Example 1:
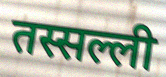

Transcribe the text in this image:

तस्सल्ली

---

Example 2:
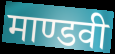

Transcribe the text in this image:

माण्डवी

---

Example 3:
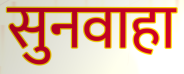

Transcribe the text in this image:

सुनवाहा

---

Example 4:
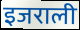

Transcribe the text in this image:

इजराली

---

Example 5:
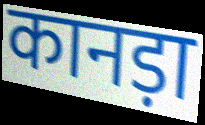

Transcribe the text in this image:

कानड़ा